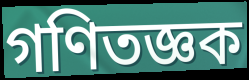
গণিতজ্ঞক